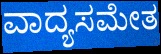
ವಾದ್ಯಸಮೇತ